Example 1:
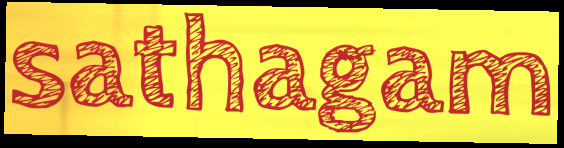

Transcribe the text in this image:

sathagam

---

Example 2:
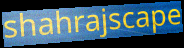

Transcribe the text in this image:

shahrajscape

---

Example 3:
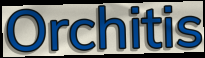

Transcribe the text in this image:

Orchitis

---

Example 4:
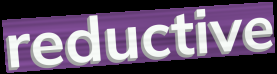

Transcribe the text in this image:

reductive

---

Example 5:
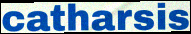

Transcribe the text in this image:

catharsis